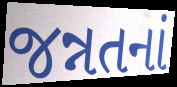
જન્નતનાં